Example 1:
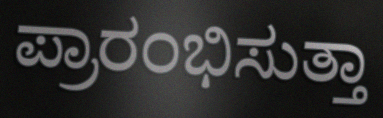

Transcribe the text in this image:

ಪ್ರಾರಂಭಿಸುತ್ತಾ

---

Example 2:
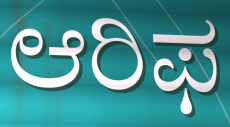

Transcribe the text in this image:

ಆರಿಫ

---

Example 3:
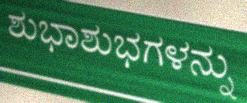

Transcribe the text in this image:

ಶುಭಾಶುಭಗಳನ್ನು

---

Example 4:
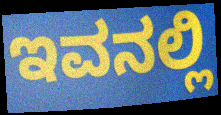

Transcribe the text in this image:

ಇವನಲ್ಲಿ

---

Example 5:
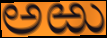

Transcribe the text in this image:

ಅಱು